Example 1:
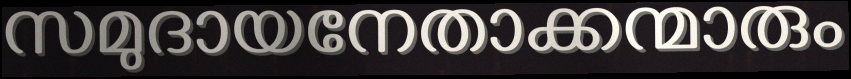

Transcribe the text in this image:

സമുദായനേതാക്കന്മാരും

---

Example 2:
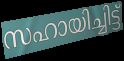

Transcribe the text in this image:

സഹായിച്ചിട്ട്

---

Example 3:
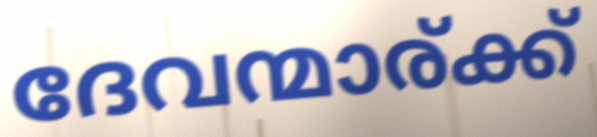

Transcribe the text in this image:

ദേവന്മാര്ക്ക്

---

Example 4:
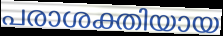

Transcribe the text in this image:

പരാശക്തിയായ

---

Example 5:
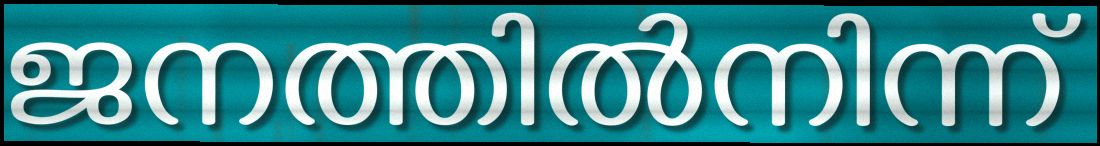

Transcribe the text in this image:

ജനത്തിൽനിന്ന്